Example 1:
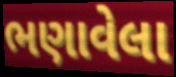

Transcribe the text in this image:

ભણાવેલા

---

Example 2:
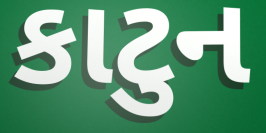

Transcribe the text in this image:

કાટુન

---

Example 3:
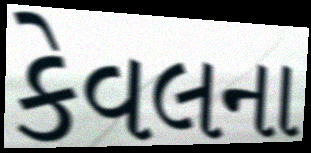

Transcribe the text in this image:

કેવલના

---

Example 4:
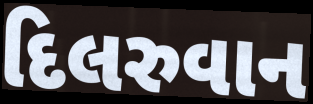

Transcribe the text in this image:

દિલરુવાન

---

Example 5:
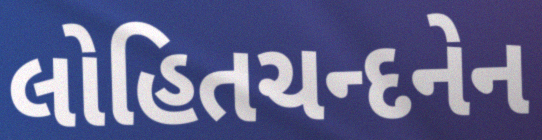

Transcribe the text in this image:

લોહિતચન્દનેન